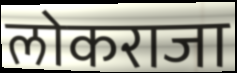
लोकराजा